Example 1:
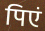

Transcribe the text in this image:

पिएं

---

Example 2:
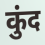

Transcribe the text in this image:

कुंद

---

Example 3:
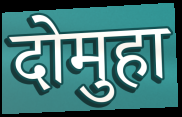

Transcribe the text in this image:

दोमुहा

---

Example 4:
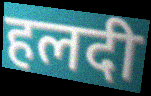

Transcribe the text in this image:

हलदी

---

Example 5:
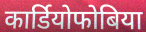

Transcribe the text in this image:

कार्डियोफोबिया